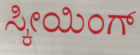
ಸ್ಕೀಯಿಂಗ್